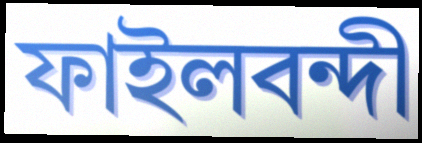
ফাইলবন্দী